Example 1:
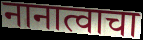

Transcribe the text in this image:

नानात्वाचा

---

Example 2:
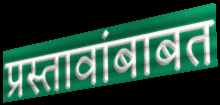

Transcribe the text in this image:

प्रस्तावांबाबत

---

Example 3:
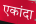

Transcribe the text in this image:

एकांदा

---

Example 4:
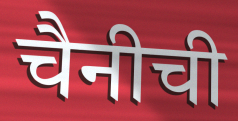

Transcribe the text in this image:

चैनीची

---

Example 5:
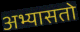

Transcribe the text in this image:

अभ्यासतो